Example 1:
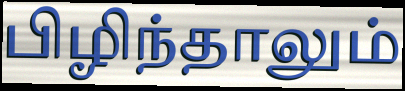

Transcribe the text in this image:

பிழிந்தாலும்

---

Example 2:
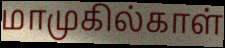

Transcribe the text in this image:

மாமுகில்காள்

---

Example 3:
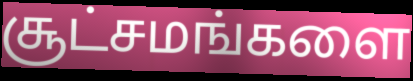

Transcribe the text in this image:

சூட்சமங்களை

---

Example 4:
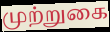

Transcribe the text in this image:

முற்றுகை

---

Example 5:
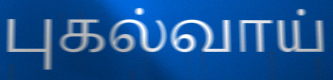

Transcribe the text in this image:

புகல்வாய்